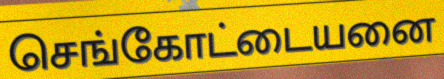
செங்கோட்டையனை